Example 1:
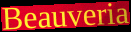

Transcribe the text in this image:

Beauveria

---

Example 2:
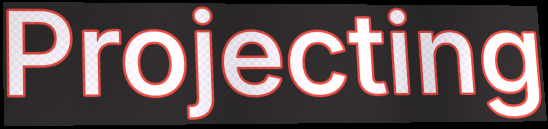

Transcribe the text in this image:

Projecting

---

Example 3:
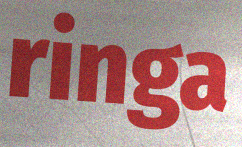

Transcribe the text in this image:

ringa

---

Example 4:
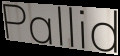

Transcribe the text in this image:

Pallid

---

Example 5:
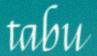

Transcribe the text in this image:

tabu